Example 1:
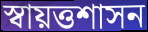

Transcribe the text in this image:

স্বায়ত্তশাসন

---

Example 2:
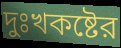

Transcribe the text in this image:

দুঃখকষ্টের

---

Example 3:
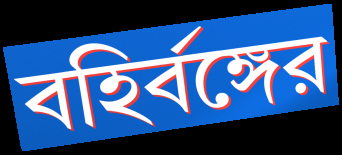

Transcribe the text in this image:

বহির্বঙ্গের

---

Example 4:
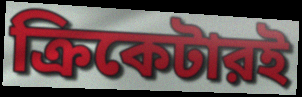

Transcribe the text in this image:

ক্রিকেটারই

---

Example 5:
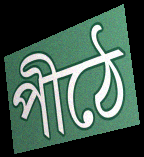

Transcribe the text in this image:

পীঠে